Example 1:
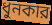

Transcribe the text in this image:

ধুনকার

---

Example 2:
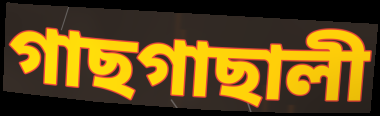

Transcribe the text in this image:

গাছগাছালী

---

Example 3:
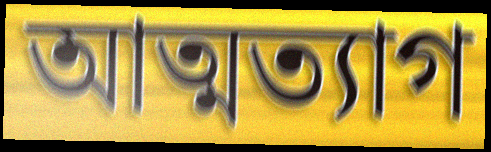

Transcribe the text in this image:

আত্মত্যাগ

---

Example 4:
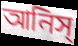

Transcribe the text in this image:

আনিস্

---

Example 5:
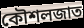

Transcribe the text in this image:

কৌশলজাত